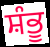
ਸ਼ੰਭੂ